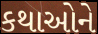
કથાઓને